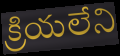
క్రియలేని